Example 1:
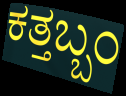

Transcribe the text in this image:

ಕತ್ತಬ್ಬಂ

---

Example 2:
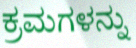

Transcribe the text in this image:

ಕ್ರಮಗಳನ್ನು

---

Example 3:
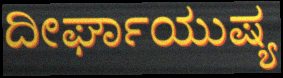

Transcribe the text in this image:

ದೀರ್ಘಾಯುಷ್ಯ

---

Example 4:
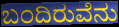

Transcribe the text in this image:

ಬಂದಿರುವೆನು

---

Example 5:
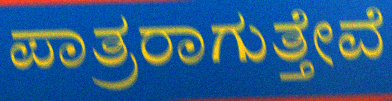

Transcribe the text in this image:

ಪಾತ್ರರಾಗುತ್ತೇವೆ